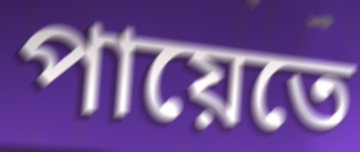
পায়েতে